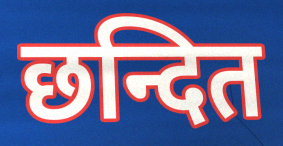
छन्दित